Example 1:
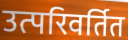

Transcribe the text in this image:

उत्परिवर्तित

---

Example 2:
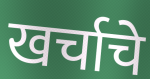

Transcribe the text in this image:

खर्चाचे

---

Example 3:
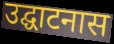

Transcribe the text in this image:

उद्घाटनास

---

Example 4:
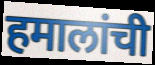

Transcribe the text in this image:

हमालांची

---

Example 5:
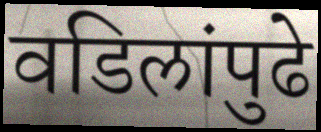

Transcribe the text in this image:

वडिलांपुढे